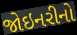
જોઇનરીનો